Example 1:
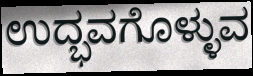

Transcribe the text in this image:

ಉದ್ಭವಗೊಳ್ಳುವ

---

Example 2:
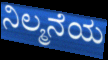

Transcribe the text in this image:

ನಿಲ್ಮನೆಯ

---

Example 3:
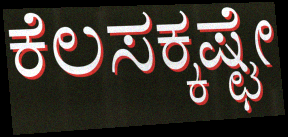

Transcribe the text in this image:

ಕೆಲಸಕ್ಕಷ್ಟೇ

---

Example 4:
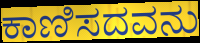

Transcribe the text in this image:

ಕಾಣಿಸದವನು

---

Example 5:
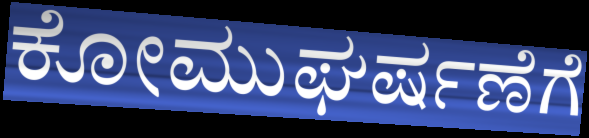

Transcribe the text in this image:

ಕೋಮುಘರ್ಷಣೆಗೆ